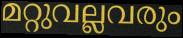
മറ്റുവല്ലവരും